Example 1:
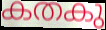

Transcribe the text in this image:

കതകു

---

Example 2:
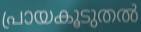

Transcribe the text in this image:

പ്രായകൂടുതൽ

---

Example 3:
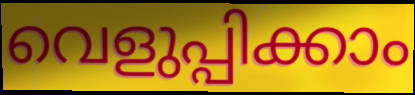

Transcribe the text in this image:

വെളുപ്പിക്കാം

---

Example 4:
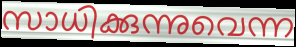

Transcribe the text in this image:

സാധിക്കുന്നുവെന്ന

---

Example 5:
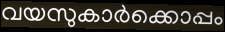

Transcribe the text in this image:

വയസുകാർക്കൊപ്പം